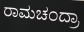
ರಾಮಚಂದ್ರಾ